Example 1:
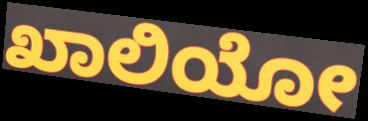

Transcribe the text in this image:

ಖಾಲಿಯೋ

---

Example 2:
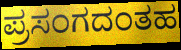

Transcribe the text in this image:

ಪ್ರಸಂಗದಂತಹ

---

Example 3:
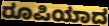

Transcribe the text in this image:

ರೂಪಿಯಾದ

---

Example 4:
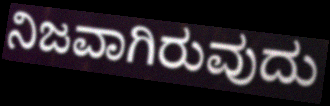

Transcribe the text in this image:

ನಿಜವಾಗಿರುವುದು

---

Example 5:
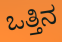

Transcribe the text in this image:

ಒತ್ತಿನ